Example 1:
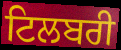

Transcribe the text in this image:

ਟਿਲਬਰੀ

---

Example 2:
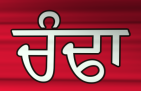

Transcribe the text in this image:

ਚੰਢਾ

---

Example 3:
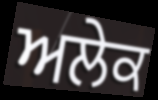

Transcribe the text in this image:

ਅਲੇਕ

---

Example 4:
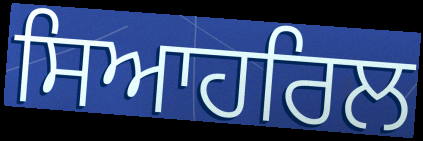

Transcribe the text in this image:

ਸਿਆਹਰਿਲ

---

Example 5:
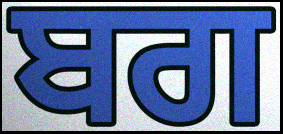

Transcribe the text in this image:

ਬਗ